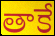
తాకే